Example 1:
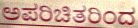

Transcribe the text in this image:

ಅಪರಿಚಿತರಿಂದ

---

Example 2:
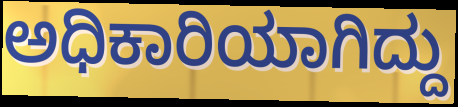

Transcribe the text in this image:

ಅಧಿಕಾರಿಯಾಗಿದ್ದು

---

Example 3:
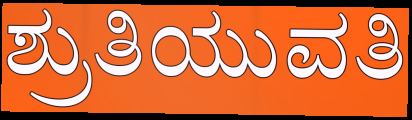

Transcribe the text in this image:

ಶ್ರುತಿಯುವತಿ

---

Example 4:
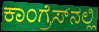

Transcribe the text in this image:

ಕಾಂಗ್ರೆಸ್‍ನಲ್ಲಿ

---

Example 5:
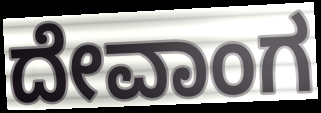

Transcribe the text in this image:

ದೇವಾಂಗ